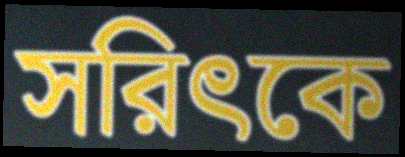
সরিৎকে